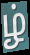
ழ்